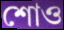
শোও